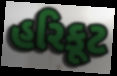
હરિકૂટ